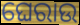
ଘେରାଉ